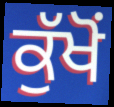
ਕੁੱਖੋਂ